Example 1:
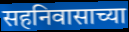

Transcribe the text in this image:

सहनिवासाच्या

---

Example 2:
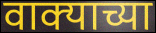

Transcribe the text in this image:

वाक्याच्या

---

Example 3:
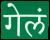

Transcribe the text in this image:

गेलं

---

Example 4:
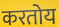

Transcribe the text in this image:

करतोय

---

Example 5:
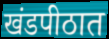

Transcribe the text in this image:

खंडपीठात